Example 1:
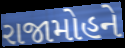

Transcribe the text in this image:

રાજામોહને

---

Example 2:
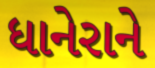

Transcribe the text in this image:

ધાનેરાને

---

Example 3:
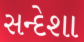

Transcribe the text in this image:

સન્દેશા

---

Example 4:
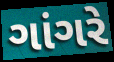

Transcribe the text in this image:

ગાંગરે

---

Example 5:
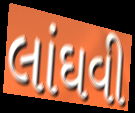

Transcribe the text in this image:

લાંઘવી